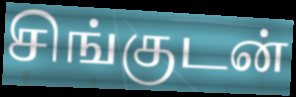
சிங்குடன்